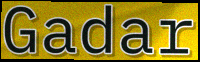
Gadar